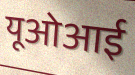
यूओआई